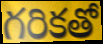
గరికతో